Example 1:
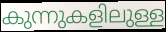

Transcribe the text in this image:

കുന്നുകളിലുള്ള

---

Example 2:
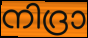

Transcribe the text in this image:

നിദ്രാ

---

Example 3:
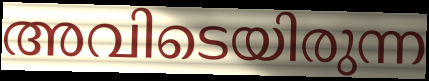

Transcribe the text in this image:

അവിടെയിരുന്ന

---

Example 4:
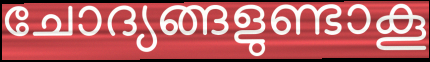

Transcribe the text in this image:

ചോദ്യങ്ങളുണ്ടാകൂ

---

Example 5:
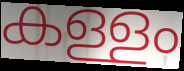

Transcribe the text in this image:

കള്ളം